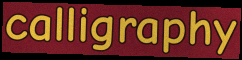
calligraphy